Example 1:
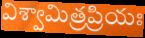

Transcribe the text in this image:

విశ్వామిత్రప్రియః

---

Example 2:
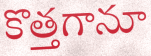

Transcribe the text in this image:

కొత్తగానూ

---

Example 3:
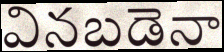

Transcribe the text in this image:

వినబడెనా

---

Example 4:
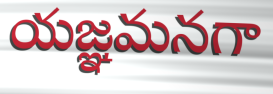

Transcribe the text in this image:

యజ్ఞమనగా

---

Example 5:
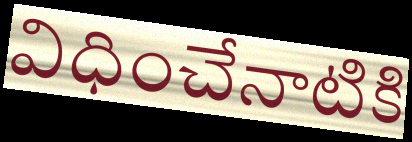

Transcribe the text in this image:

విధించేనాటికి